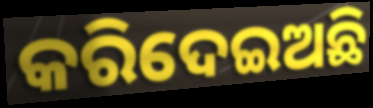
କରିଦେଇଅଛି